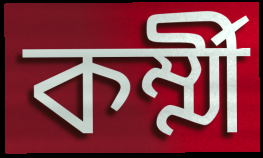
কর্ম্মী